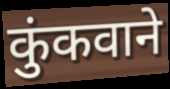
कुंकवाने